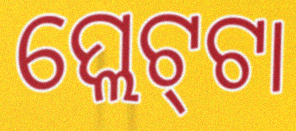
ପ୍ଲେଟ୍‍ଟା